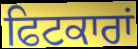
ਫਿਟਕਾਰਾਂ